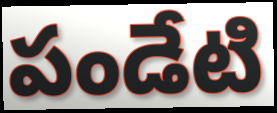
పండేటి